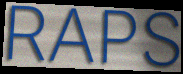
RAPS